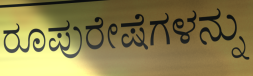
ರೂಪುರೇಷೆಗಳನ್ನು